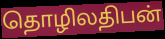
தொழிலதிபன்